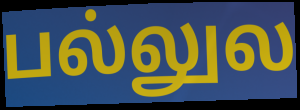
பல்லுல